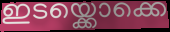
ഇടയ്ക്കൊക്കെ